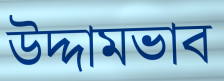
উদ্দামভাব